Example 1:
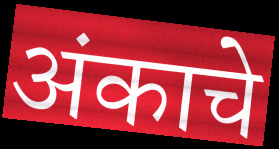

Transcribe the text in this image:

अंकाचे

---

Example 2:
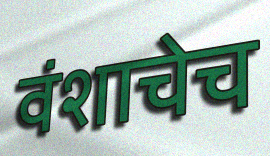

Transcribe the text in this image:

वंशाचेच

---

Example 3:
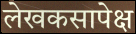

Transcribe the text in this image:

लेखकसापेक्ष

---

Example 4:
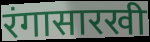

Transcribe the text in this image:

रंगासारखी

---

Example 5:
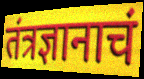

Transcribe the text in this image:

तंत्रज्ञानाचं